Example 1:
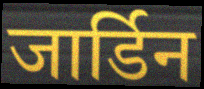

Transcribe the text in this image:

जार्डिन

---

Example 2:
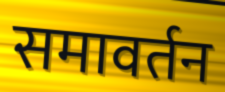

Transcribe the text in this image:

समावर्तन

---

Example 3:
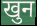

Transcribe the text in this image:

खुन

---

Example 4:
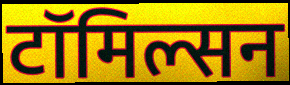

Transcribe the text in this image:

टॉमिल्सन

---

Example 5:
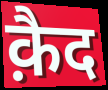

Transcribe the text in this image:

क़ैद